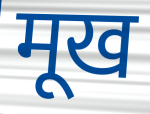
मूख